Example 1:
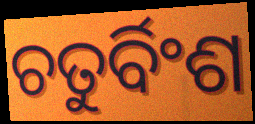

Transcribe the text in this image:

ଚତୁର୍ବିଂଶ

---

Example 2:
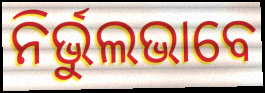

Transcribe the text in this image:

ନିର୍ଭୁଲଭାବେ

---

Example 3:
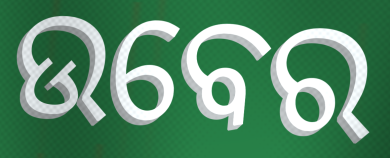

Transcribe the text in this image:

ଉବେର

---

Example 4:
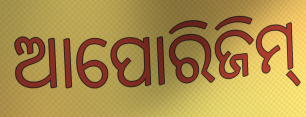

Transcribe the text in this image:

ଆପୋରିଜିମ୍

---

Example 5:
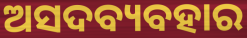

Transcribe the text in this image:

ଅସଦବ୍ୟବହାର